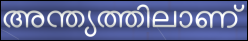
അന്ത്യത്തിലാണ്